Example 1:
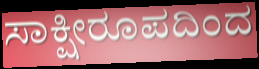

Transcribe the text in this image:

ಸಾಕ್ಷೀರೂಪದಿಂದ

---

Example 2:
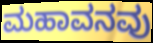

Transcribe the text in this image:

ಮಹಾವನವು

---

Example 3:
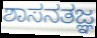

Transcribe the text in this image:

ಶಾಸನತಜ್ಞ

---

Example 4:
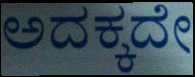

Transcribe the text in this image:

ಅದಕ್ಕದೇ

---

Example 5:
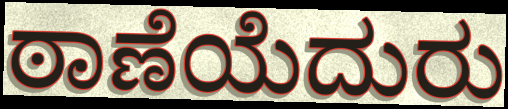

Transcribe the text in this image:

ಠಾಣೆಯೆದುರು